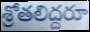
శ్రోతలిద్దరూ